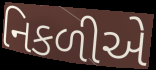
નિકળીએ